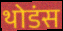
थोडंस